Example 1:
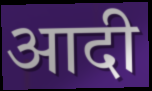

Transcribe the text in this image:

आदी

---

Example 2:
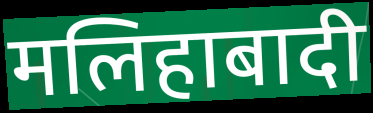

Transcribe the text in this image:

मलिहाबादी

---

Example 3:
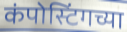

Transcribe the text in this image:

कंपोस्टिंगच्या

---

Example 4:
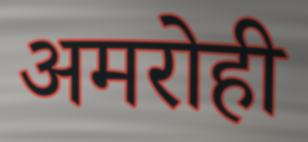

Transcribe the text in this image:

अमरोही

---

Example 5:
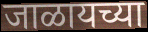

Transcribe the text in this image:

जाळायच्या